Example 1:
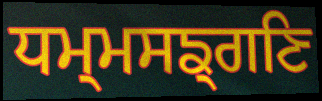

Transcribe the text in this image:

ਧਮ੍ਮਸਙ੍ਗਣਿ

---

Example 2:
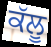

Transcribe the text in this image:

ਕੱਲੂ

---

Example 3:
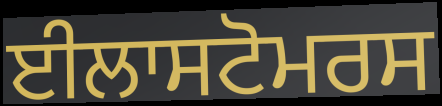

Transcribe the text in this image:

ਈਲਾਸਟੋਮਰਸ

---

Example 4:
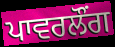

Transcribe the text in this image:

ਪਾਵਰਲੌਂਗ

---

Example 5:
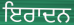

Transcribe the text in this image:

ਇਰਾਦਨ